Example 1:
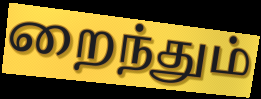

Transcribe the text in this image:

றைந்தும்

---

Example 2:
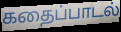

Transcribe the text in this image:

கதைப்பாடல்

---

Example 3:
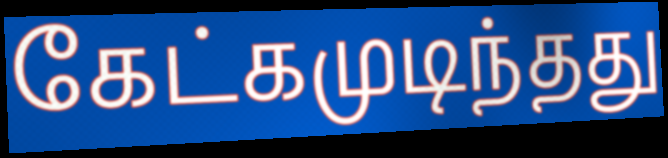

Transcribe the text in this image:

கேட்கமுடிந்தது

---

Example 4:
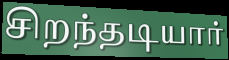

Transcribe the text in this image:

சிறந்தடியார்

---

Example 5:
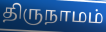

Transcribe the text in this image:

திருநாமம்